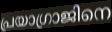
പ്രയാഗ്രാജിനെ